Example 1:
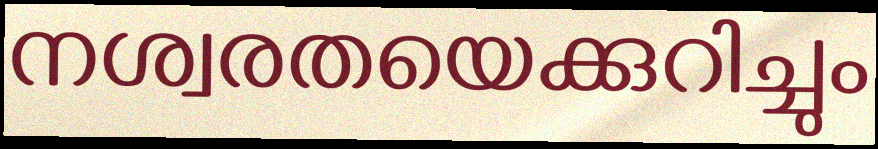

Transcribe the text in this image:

നശ്വരതയെക്കുറിച്ചും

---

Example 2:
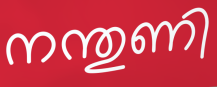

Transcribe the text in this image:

നന്തുണി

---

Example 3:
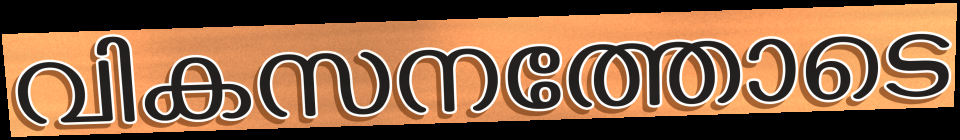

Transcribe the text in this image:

വികസനത്തോടെ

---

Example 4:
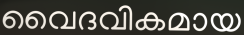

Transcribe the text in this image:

വൈദവികമായ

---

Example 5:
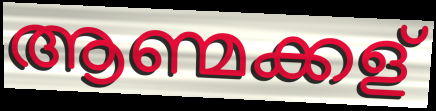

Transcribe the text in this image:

ആണ്മക്കള്